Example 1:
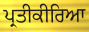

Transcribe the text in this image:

ਪ੍ਰਤੀਕੀਰਿਆ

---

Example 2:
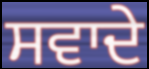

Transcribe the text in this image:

ਸਵਾਦੇ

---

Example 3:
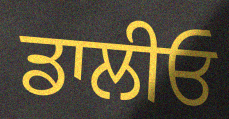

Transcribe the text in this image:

ਡਾਲੀਓ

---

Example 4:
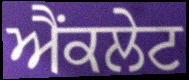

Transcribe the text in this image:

ਐਂਕਲੇਟ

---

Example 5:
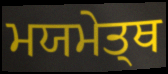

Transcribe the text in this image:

ਮਯਮੇਤ੍ਥ